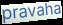
pravaha